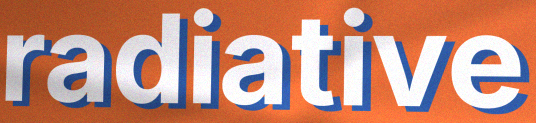
radiative